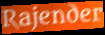
Rajender